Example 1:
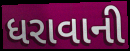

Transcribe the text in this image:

ધરાવાની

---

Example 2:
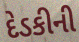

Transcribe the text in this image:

દેડકીની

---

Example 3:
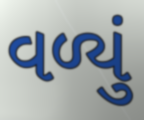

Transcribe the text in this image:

વળ્યું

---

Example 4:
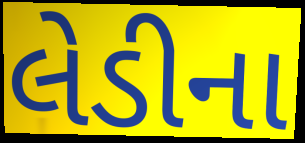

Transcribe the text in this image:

લેડીના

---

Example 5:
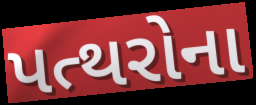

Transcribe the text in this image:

પત્થરોના